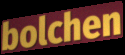
bolchen